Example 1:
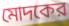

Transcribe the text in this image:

মোদকের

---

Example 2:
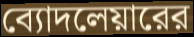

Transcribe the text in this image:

ব্যোদলেয়ারের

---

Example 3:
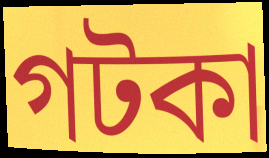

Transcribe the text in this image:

গটকা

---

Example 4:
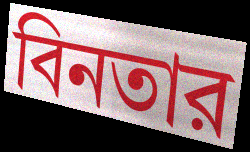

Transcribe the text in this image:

বিনতার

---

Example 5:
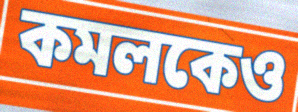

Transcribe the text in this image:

কমলকেও